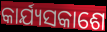
କାର୍ଯ୍ୟସକାଶେ